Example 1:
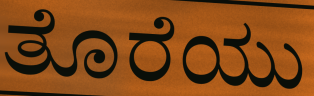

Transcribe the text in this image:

ತೊರೆಯು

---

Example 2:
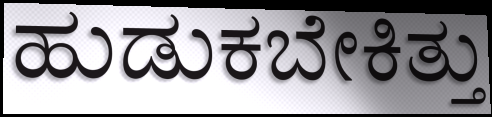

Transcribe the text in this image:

ಹುಡುಕಬೇಕಿತ್ತು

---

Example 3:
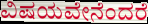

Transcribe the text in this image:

ವಿಷಯವೇನೆಂದರೆ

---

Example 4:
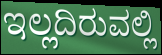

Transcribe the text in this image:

ಇಲ್ಲದಿರುವಲ್ಲಿ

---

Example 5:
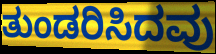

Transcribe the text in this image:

ತುಂಡರಿಸಿದವು